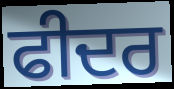
ਫੀਦਰ